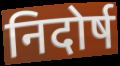
निदोर्ष